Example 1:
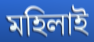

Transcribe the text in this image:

মহিলাই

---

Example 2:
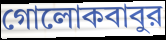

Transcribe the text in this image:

গোলোকবাবুর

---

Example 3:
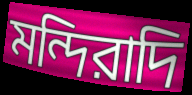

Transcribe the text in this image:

মন্দিরাদি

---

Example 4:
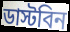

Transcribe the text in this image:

ডাস্টবিন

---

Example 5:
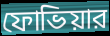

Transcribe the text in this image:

ফোভিয়ার